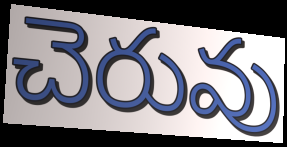
చెరువు